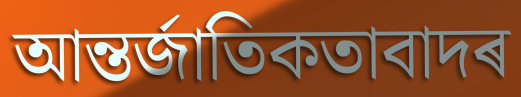
আন্তৰ্জাতিকতাবাদৰ